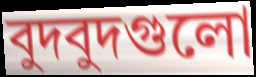
বুদবুদগুলো